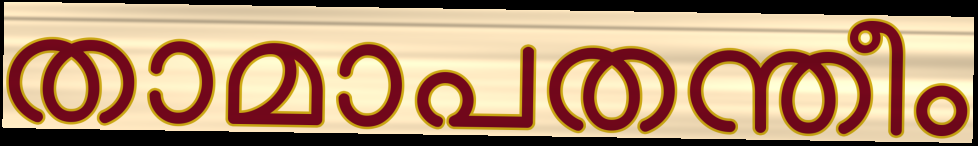
താമാപതന്തീം